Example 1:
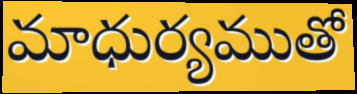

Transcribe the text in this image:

మాధుర్యముతో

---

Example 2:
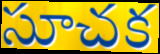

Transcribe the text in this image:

సూచక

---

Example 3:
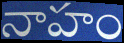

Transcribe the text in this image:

నాహం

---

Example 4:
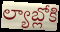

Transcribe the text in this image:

ల్యాబ్లోకి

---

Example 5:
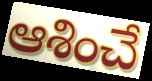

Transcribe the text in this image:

ఆశించే